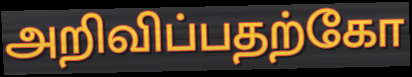
அறிவிப்பதற்கோ